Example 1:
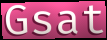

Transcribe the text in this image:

Gsat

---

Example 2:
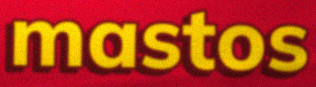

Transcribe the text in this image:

mastos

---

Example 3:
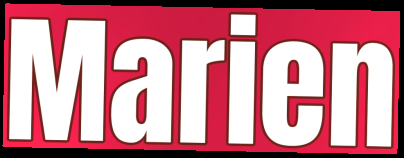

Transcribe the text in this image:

Marien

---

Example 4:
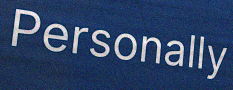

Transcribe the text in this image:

Personally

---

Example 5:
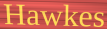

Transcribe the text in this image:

Hawkes